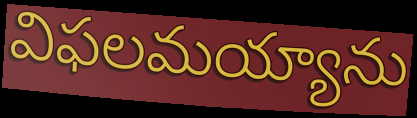
విఫలమయ్యాను